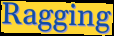
Ragging